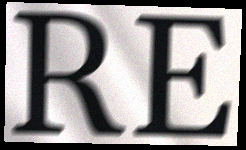
RE